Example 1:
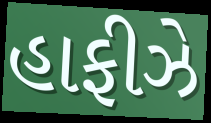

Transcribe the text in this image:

હાફીઝે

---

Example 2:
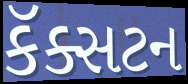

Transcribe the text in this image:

કૅક્સટન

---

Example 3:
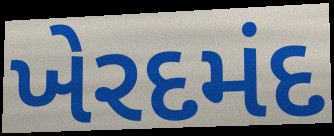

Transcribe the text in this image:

ખેરદમંદ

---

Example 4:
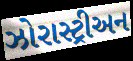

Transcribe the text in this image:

ઝોરાસ્ટ્રીઅન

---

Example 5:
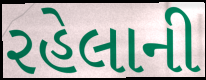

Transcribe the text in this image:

રહેલાની